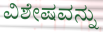
ವಿಶೇಷವನ್ನು